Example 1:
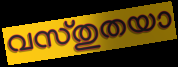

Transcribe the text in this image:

വസ്തുതയാ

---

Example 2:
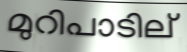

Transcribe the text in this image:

മുറിപാടില്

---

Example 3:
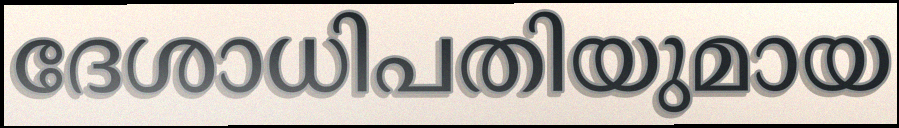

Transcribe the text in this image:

ദേശാധിപതിയുമായ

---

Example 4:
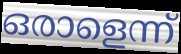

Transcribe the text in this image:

ഒരാളെന്ന്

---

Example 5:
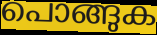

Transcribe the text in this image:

പൊങ്ങുക